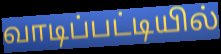
வாடிப்பட்டியில்